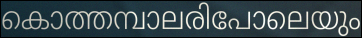
കൊത്തമ്പാലരിപോലെയും